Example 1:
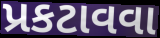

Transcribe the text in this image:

પ્રકટાવવા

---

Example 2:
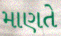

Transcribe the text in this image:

માણતે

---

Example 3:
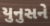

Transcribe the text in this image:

યુનુસને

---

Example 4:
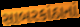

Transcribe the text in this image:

સાબરકાંઠાનાં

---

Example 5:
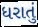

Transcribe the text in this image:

ધરાતું